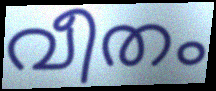
വീതം